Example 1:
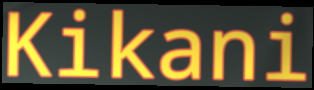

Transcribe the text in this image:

Kikani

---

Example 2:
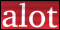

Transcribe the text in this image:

alot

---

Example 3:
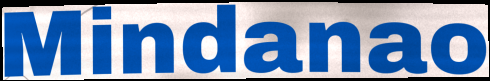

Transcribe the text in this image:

Mindanao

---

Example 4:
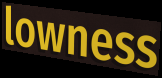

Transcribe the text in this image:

lowness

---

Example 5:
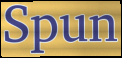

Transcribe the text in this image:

Spun